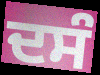
ਦਸੰ